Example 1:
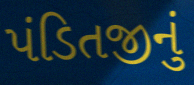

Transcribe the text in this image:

પંડિતજીનું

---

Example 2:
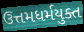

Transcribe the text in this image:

ઉત્તમધર્મયુક્ત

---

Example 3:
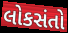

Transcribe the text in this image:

લોકસંતો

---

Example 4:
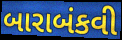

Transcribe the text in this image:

બારાબંકવી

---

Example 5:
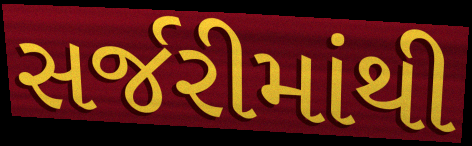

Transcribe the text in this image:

સર્જરીમાંથી